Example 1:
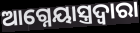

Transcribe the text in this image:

ଆଗ୍ନେୟାସ୍ତ୍ରଦ୍ୱାରା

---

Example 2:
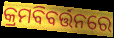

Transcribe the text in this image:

କ୍ରମବିବର୍ତ୍ତନରେ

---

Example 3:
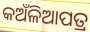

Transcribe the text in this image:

କଅଁଳିଆପତ୍ର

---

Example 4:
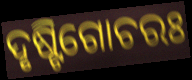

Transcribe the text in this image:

ଦୃଷ୍ଟିଗୋଚରଃ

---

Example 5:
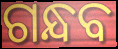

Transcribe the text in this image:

ଗନ୍ଧବ